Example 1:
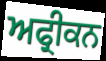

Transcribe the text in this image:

ਅਫ੍ਰੀਕਨ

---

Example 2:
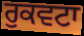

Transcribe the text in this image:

ਰੁਕਵਟਾ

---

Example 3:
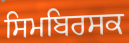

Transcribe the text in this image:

ਸਿਮਬਿਰਸਕ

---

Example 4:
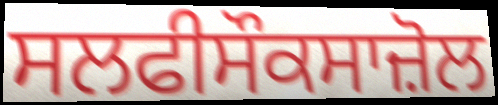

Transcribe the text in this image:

ਸਲਫੀਸੌਕਸਾਜ਼ੋਲ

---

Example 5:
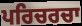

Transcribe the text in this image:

ਪਰਿਚਰਚਾ